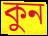
কুন